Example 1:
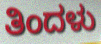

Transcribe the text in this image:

ತಿಂದಳು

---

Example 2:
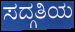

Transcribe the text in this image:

ಸದ್ಗತಿಯ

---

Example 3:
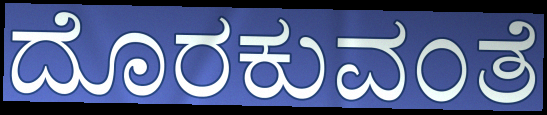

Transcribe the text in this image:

ದೊರಕುವಂತೆ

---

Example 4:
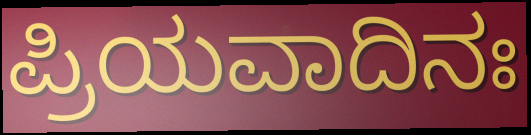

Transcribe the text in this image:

ಪ್ರಿಯವಾದಿನಃ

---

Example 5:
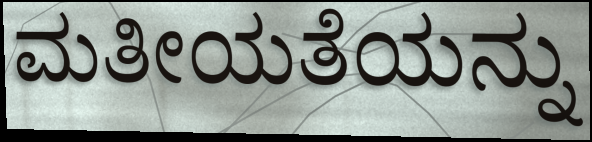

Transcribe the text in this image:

ಮತೀಯತೆಯನ್ನು